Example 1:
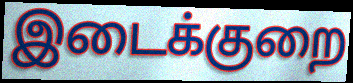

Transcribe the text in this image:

இடைக்குறை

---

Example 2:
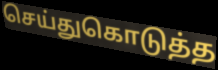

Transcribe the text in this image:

செய்துகொடுத்த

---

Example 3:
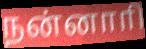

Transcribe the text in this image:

நன்னாரி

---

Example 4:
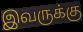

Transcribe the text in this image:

இவருக்கு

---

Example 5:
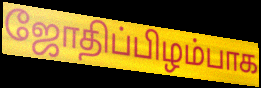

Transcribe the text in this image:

ஜோதிப்பிழம்பாக